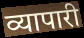
व्‍यापारी